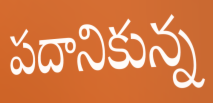
పదానికున్న